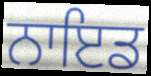
ਨਾਇਡ